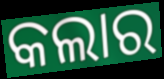
କଲାର